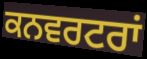
ਕਨਵਰਟਰਾਂ